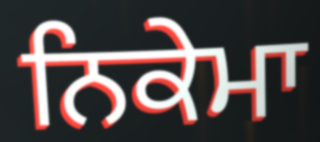
ਨਿਕੇਮਾ